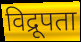
विद्रूपता